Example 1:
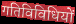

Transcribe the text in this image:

गतिविविधियों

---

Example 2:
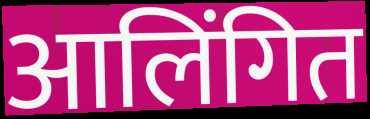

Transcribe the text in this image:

आलिंगित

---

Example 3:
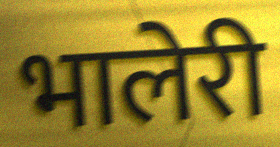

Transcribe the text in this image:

भालेरी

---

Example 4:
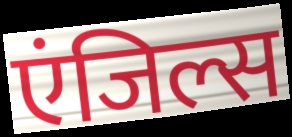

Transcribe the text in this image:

एंजिल्‍स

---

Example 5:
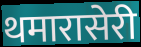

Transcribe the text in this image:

थमारासेरी